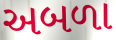
અબળા